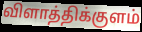
விளாத்திக்குளம்